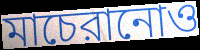
মাচেরানোও